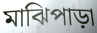
মাঝিপাড়া